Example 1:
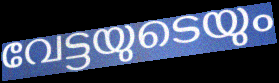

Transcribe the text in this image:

വേട്ടയുടെയും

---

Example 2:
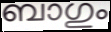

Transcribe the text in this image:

ബാഗും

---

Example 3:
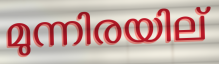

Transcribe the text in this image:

മുന്നിരയില്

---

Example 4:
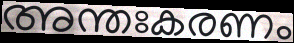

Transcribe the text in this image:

അന്തഃകരണം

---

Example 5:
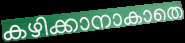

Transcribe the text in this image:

കഴിക്കാനാകാതെ